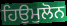
ਹਿਉਮੁਲੋਨ